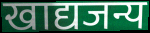
खाद्यजन्य